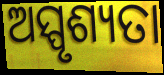
ଅସ୍ପୃଶ୍ୟତା